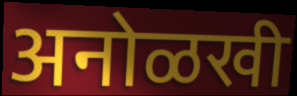
अनोळखी